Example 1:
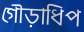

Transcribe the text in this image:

গৌড়াধিপ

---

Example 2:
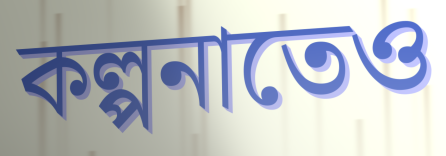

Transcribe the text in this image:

কল্পনাতেও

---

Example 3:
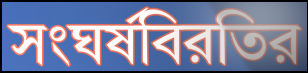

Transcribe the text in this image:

সংঘর্ষবিরতির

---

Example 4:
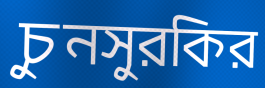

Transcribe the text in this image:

চুনসুরকির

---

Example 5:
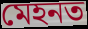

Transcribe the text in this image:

মেহনত